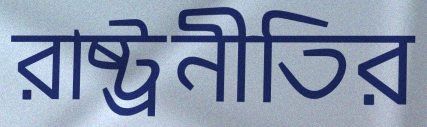
রাষ্ট্রনীতির